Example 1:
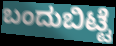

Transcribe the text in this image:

ಬಂದುಬಿಟ್ಟೆ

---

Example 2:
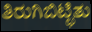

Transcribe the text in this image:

ತಿರುಗಿಬಿಟ್ಟಿತು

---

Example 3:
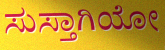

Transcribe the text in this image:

ಸುಸ್ತಾಗಿಯೋ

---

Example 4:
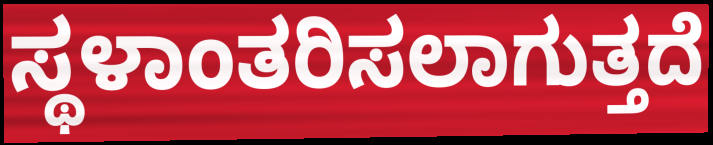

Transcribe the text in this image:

ಸ್ಥಳಾಂತರಿಸಲಾಗುತ್ತದೆ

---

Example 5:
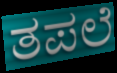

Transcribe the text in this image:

ತಪಲೆ